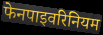
फेनपाइवरिनियम